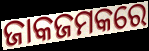
ଜାକଜମକରେ